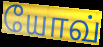
யோவ்